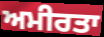
ਅਮੀਰਤਾ